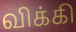
விக்கி